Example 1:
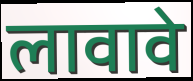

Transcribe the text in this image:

लावावे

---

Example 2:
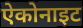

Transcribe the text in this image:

ऐकोनाइट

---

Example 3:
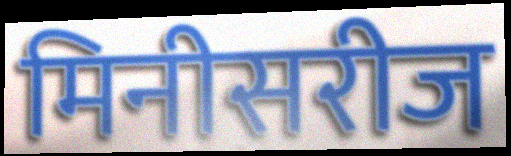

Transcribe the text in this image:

मिनीसरीज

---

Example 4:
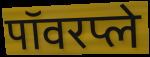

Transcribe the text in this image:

पॉवरप्ले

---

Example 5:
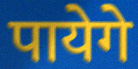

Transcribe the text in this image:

पायेगे